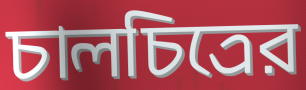
চালচিত্রের